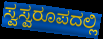
ಸ್ವಸ್ವರೂಪದಲ್ಲಿ